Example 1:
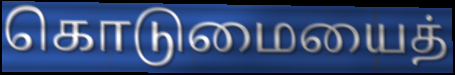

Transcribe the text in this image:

கொடுமையைத்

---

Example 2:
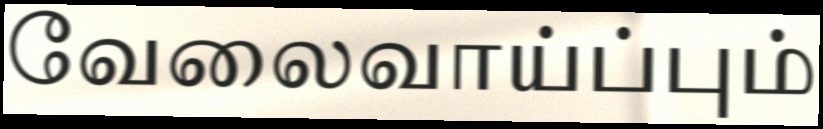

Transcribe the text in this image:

வேலைவாய்ப்பும்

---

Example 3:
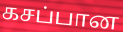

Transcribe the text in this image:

கசப்பான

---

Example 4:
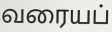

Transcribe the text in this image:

வரையப்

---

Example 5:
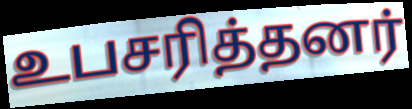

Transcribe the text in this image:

உபசரித்தனர்